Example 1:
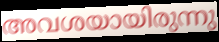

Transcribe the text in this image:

അവശയായിരുന്നു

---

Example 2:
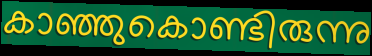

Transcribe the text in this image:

കാഞ്ഞുകൊണ്ടിരുന്നു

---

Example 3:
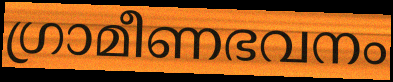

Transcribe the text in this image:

ഗ്രാമീണഭവനം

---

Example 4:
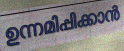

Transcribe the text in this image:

ഉന്നമിപ്പിക്കാൻ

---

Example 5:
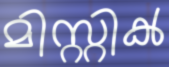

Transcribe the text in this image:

മിസ്റ്റിൿ